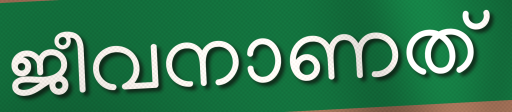
ജീവനാണത്